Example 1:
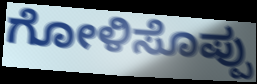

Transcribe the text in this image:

ಗೋಳಿಸೊಪ್ಪು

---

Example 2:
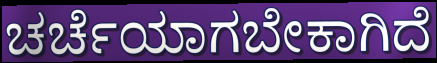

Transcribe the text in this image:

ಚರ್ಚೆಯಾಗಬೇಕಾಗಿದೆ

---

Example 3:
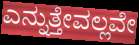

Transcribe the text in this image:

ಎನ್ನುತ್ತೇವಲ್ಲವೇ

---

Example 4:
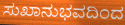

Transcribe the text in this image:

ಸುಖಾನುಭವದಿಂದ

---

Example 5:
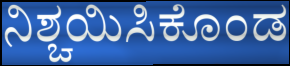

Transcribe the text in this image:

ನಿಶ್ಚಯಿಸಿಕೊಂಡ